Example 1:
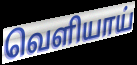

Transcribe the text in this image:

வெளியாய்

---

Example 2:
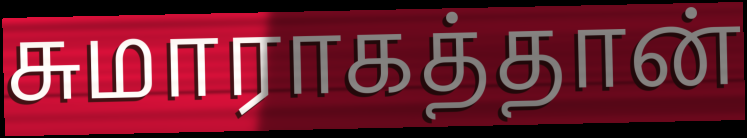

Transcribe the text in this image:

சுமாராகத்தான்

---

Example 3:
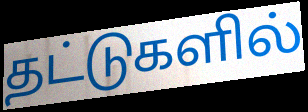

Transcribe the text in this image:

தட்டுகளில்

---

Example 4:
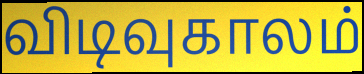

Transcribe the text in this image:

விடிவுகாலம்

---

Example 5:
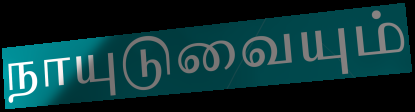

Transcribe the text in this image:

நாயுடுவையும்